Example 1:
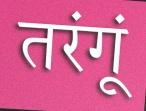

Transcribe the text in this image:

तरंगूं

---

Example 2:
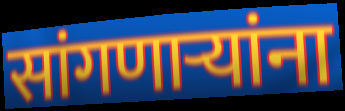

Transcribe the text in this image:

सांगणार्‍यांना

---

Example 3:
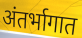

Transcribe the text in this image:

अंतर्भागात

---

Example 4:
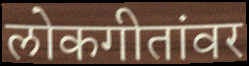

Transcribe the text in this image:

लोकगीतांवर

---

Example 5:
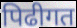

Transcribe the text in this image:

पिढीगत